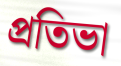
প্রতিভা